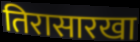
तिरासारखा